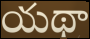
యథా